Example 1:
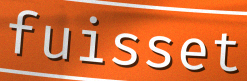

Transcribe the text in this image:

fuisset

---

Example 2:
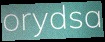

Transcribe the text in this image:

orydsa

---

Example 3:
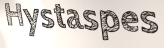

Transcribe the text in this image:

Hystaspes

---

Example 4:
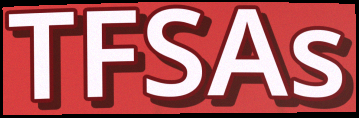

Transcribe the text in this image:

TFSAs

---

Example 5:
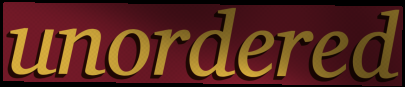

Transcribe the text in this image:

unordered